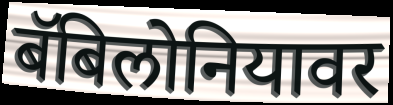
बॅबिलोनियावर